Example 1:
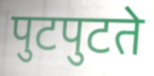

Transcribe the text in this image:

पुटपुटते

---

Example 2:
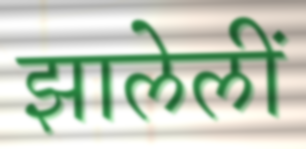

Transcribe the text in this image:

झालेलीं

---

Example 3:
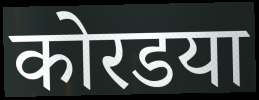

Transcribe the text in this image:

कोरडया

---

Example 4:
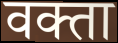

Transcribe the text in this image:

वक्ता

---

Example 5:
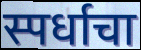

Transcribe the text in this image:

स्पर्धाचा